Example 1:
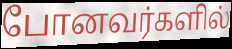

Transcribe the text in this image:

போனவர்களில்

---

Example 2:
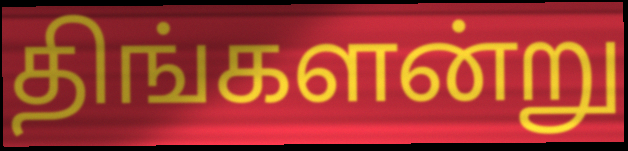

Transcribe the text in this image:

திங்களன்று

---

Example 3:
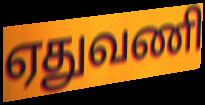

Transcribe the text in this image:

ஏதுவணி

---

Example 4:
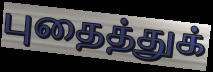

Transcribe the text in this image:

புதைத்துக்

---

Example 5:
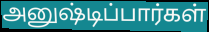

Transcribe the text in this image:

அனுஷ்டிப்பார்கள்